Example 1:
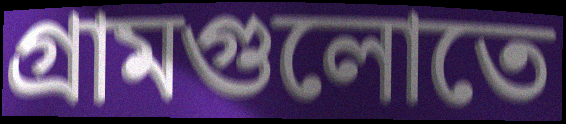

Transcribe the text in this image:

গ্রামগুলোতে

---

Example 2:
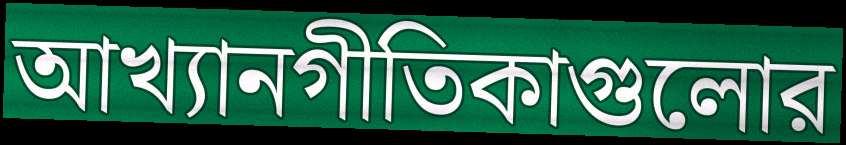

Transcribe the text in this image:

আখ্যানগীতিকাগুলোর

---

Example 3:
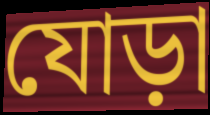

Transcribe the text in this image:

যোড়া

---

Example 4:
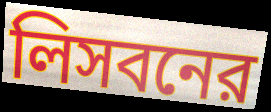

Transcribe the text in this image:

লিসবনের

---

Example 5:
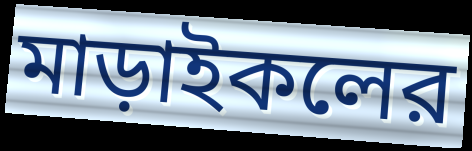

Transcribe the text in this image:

মাড়াইকলের